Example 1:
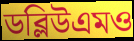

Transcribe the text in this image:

ডব্লিউএমও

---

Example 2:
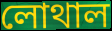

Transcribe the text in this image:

লোথাল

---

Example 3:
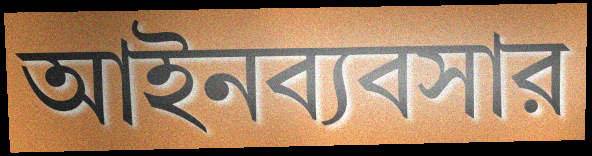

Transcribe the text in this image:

আইনব্যবসার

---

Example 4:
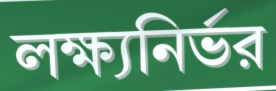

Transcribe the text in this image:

লক্ষ্যনির্ভর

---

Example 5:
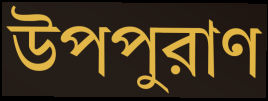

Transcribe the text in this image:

উপপুরাণ